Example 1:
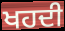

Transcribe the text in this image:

ਖਹਦੀ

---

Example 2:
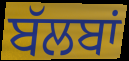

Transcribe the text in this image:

ਬੱਲਬਾਂ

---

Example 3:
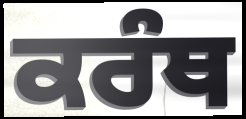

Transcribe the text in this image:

ਕਰੰਥ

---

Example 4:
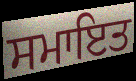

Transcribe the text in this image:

ਸਮਾਇਤ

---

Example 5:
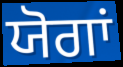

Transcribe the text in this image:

ਯੋਗਾਂ